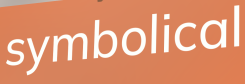
symbolical